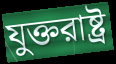
যুক্তরাষ্ট্র